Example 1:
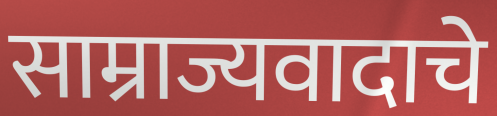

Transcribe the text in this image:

साम्राज्यवादाचे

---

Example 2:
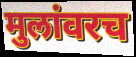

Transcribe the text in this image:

मुलांवरच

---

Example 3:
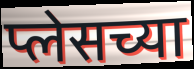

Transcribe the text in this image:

प्लेसच्या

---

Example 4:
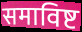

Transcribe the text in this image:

समाविष्ट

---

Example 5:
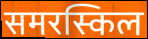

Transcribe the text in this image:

समरस्किल